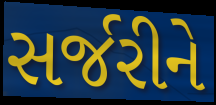
સર્જરીને